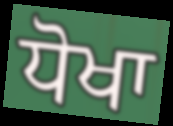
ਧੋਖਾ